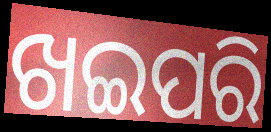
ଖଇପରି